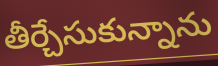
తీర్చేసుకున్నాను